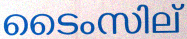
ടൈംസില്